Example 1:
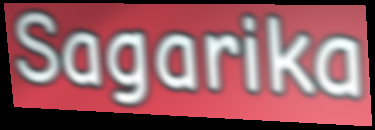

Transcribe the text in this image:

Sagarika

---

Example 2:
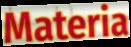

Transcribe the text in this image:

Materia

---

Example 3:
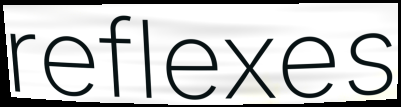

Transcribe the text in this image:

reflexes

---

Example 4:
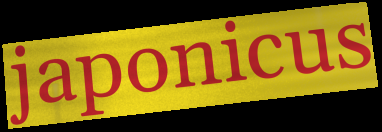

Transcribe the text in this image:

japonicus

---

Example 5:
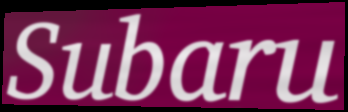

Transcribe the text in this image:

Subaru